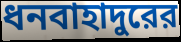
ধনবাহাদুরের